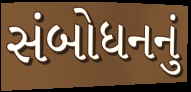
સંબોધનનું